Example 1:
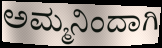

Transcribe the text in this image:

ಅಮ್ಮನಿಂದಾಗಿ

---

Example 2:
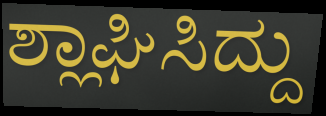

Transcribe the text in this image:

ಶ್ಲಾಘಿಸಿದ್ದು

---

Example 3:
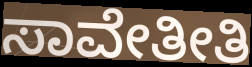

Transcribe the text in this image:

ಸಾವೇತೀತಿ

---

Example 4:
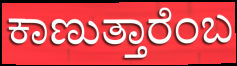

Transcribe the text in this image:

ಕಾಣುತ್ತಾರೆಂಬ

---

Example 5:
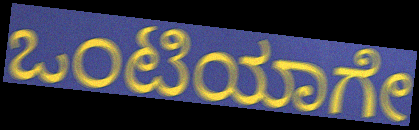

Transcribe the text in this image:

ಒಂಟಿಯಾಗೇ